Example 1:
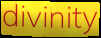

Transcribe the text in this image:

divinity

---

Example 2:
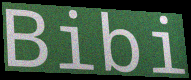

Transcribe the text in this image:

Bibi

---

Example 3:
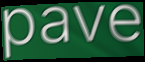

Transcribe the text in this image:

pave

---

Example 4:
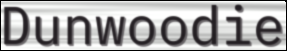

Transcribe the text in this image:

Dunwoodie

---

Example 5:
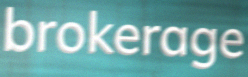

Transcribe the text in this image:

brokerage